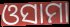
ଓସାମା